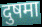
दुषमा